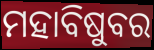
ମହାବିଷୁବର